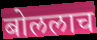
बोललाच